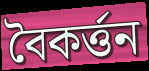
বৈকর্ত্তন